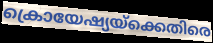
ക്രൊയേഷ്യയ്ക്കെതിരെ